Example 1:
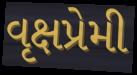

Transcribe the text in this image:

વૃક્ષપ્રેમી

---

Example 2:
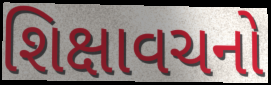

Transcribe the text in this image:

શિક્ષાવચનો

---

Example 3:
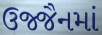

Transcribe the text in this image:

ઉજ્જૈનમાં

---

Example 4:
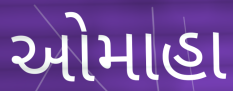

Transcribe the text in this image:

ઓમાહા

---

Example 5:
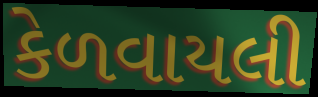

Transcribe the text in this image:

કેળવાયલી